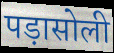
पड़ासोली